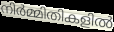
നിർമ്മിതികളിൽ